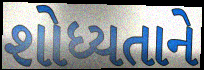
શોધ્યતાને